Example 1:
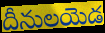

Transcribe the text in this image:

దీనులయెడ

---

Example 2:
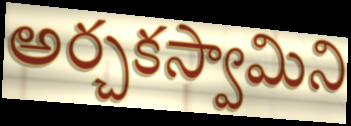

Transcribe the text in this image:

అర్చకస్వామిని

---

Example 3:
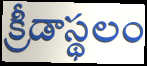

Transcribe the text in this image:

క్రీడాస్థలం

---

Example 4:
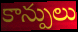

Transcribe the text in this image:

కాన్పులు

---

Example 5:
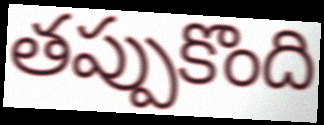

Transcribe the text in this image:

తప్పుకొంది